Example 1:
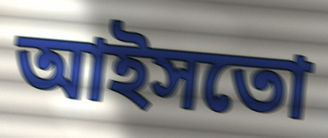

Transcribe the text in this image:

আইসতো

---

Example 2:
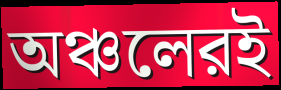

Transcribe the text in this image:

অঞ্চলেরই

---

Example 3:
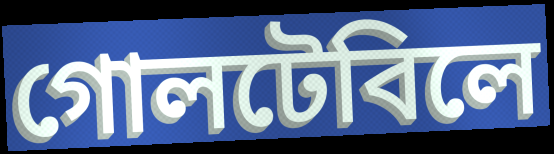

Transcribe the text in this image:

গোলটেবিলে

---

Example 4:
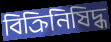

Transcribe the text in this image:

বিক্রিনিষিদ্ধ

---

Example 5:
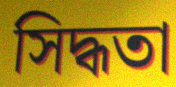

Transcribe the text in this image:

সিদ্ধতা